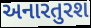
અનારતુરશ